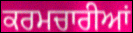
ਕਰਮਚਾਰੀਆਂ